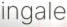
ingale